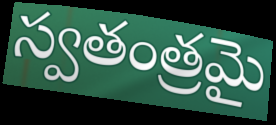
స్వతంత్రమై